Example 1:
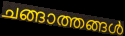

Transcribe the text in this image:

ചങ്ങാത്തങ്ങൾ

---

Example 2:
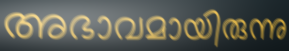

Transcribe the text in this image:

അഭാവമായിരുന്നു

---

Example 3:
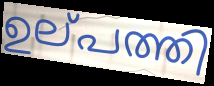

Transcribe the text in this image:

ഉല്‌പത്തി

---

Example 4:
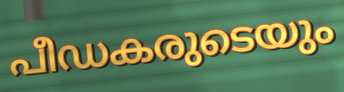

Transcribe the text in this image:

പീഡകരുടെയും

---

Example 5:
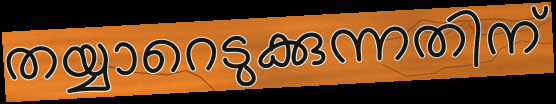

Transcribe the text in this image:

തയ്യാറെടുക്കുന്നതിന്